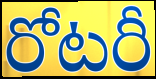
రోటరీ